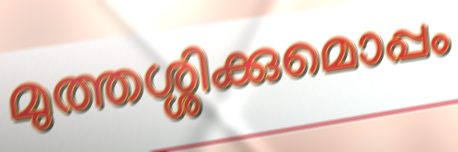
മുത്തശ്ശിക്കുമൊപ്പം